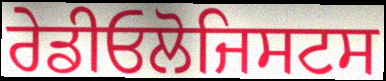
ਰੇਡੀਓਲੋਜਿਸਟਸ